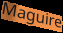
Maguire